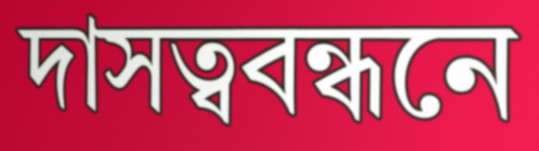
দাসত্ববন্ধনে